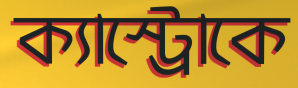
ক্যাস্ট্রোকে